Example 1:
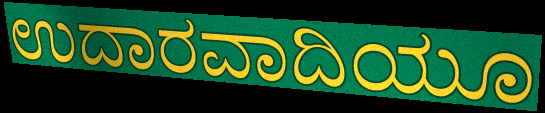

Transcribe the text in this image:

ಉದಾರವಾದಿಯೂ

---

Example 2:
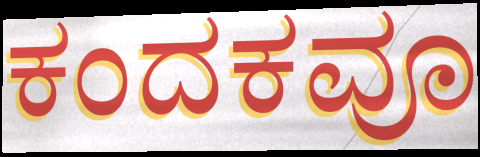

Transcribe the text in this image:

ಕಂದಕವೂ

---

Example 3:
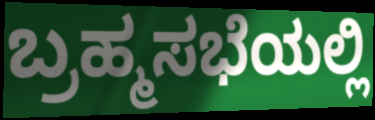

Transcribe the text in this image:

ಬ್ರಹ್ಮಸಭೆಯಲ್ಲಿ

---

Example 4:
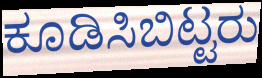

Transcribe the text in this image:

ಕೂಡಿಸಿಬಿಟ್ಟರು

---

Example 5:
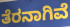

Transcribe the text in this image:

ತೆರನಾಗಿವೆ